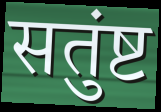
सतुंष्ट